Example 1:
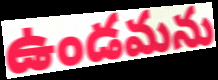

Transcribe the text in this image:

ఉండమను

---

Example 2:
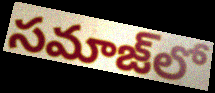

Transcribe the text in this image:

సమాజ్‌లో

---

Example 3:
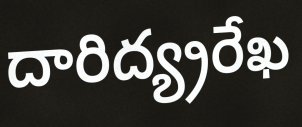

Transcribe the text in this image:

దారిద్య్రరేఖ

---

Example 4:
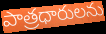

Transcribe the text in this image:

పాత్రధారులను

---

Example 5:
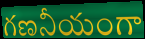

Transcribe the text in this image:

గణనీయంగా